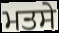
ਮਤਸੇ